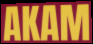
AKAM